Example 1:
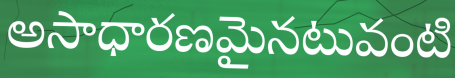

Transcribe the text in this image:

అసాధారణమైనటువంటి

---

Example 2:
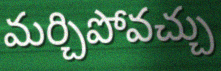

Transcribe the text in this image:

మర్చిపోవచ్చు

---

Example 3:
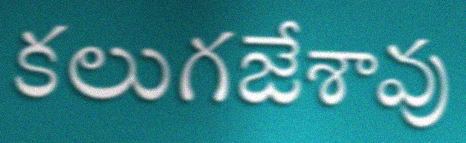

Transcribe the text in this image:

కలుగజేశావు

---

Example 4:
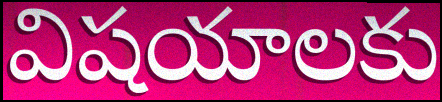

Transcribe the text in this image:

విషయాలకు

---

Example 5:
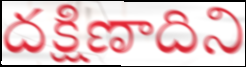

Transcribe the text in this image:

దక్షిణాదిని